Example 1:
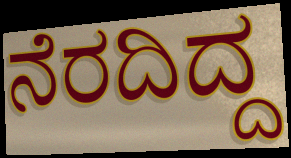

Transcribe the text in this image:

ನೆರದಿದ್ದ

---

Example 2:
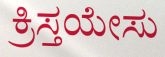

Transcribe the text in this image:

ಕ್ರಿಸ್ತಯೇಸು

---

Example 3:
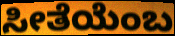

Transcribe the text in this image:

ಸೀತೆಯೆಂಬ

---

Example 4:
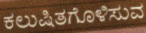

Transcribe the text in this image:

ಕಲುಷಿತಗೊಳಿಸುವ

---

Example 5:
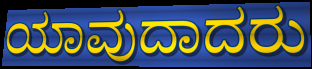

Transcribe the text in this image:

ಯಾವುದಾದರು